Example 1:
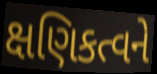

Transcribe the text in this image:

ક્ષણિકત્વને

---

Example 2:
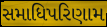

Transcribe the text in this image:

સમાધિપરિણામ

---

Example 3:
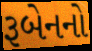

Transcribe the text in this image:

રૂબેનનો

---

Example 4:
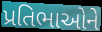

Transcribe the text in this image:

પ્રતિભાઓને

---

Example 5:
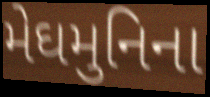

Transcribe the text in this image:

મેઘમુનિના